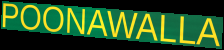
POONAWALLA